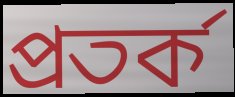
প্রতর্ক